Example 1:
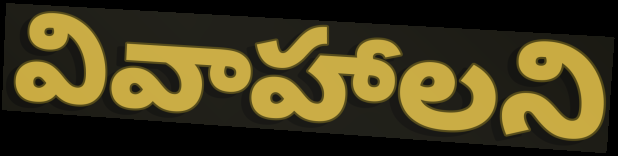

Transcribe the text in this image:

వివాహాలని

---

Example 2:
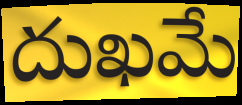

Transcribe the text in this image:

దుఖమే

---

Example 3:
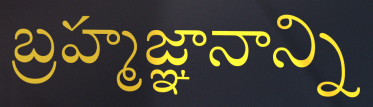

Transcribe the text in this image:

బ్రహ్మజ్ఞానాన్ని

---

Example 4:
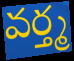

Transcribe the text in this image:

వర్త్మ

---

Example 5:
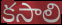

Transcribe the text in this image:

కసాలి